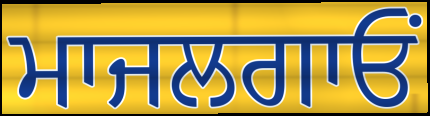
ਮਾਜਲਗਾਓਂ